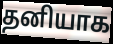
தனியாக